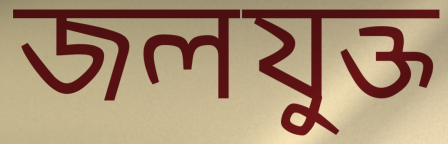
জলযুক্ত